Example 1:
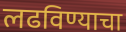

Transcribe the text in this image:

लढविण्याचा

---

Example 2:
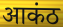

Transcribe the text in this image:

आकंठ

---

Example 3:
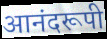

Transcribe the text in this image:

आनंदरूपी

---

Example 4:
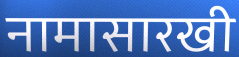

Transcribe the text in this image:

नामासारखी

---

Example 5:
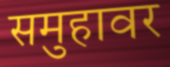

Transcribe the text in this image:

समुहावर